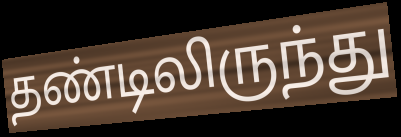
தண்டிலிருந்து